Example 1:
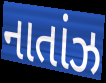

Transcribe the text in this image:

નાતાંઝ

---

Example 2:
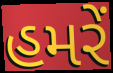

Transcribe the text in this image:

હમરેં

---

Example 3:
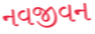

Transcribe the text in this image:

નવજીવન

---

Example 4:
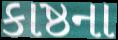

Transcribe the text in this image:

કાષ્ઠના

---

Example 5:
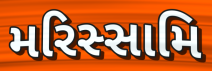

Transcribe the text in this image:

મરિસ્સામિ